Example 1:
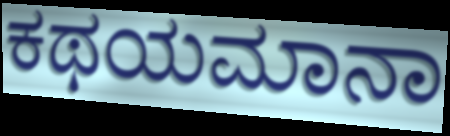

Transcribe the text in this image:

ಕಥಯಮಾನಾ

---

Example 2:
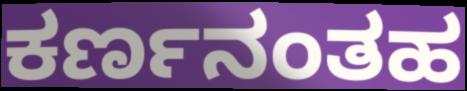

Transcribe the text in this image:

ಕರ್ಣನಂತಹ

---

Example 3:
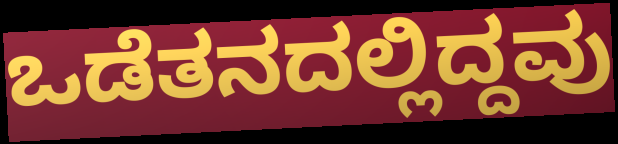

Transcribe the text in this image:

ಒಡೆತನದಲ್ಲಿದ್ದವು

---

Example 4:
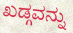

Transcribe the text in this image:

ಖಡ್ಗವನ್ನು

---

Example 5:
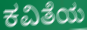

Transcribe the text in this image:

ಕವಿತೆಯ